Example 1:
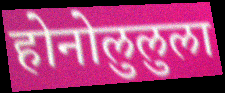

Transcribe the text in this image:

होनोलुलुला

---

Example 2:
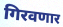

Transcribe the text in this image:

गिरवणार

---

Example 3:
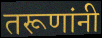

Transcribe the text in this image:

तरूणांनी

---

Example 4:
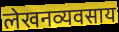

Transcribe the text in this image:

लेखनव्यवसाय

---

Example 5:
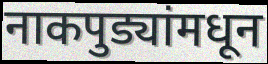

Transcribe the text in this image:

नाकपुड्यांमधून